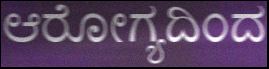
ಆರೋಗ್ಯದಿಂದ